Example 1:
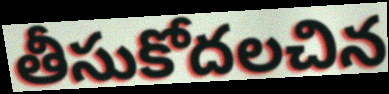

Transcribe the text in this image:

తీసుకోదలచిన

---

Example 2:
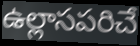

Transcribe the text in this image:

ఉల్లాసపరిచే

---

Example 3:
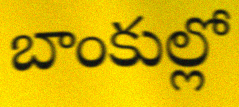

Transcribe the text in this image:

బాంకుల్లో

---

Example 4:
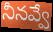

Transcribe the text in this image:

నీనవ్వే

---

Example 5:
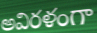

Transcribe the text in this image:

అవిరళంగా